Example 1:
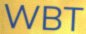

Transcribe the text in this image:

WBT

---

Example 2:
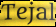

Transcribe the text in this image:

Tejal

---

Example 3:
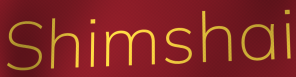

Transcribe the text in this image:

Shimshai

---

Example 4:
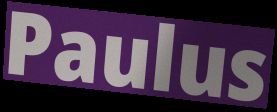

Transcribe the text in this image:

Paulus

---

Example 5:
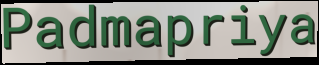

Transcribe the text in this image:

Padmapriya